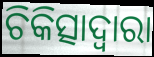
ଚିକିତ୍ସାଦ୍ଵାରା